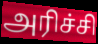
அரிச்சி